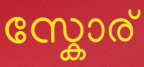
സ്കോര്